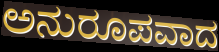
ಅನುರೂಪವಾದ